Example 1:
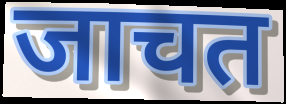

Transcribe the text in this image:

जाचत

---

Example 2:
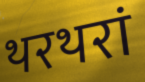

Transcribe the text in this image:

थरथरां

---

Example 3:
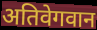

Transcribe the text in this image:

अतिवेगवान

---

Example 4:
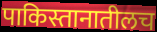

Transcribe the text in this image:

पाकिस्तानातीलच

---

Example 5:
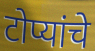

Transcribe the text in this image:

टोप्यांचे